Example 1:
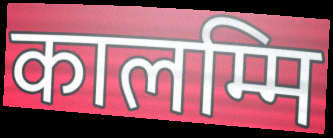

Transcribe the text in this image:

कालम्मि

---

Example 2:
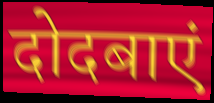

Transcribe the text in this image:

दोदबाएं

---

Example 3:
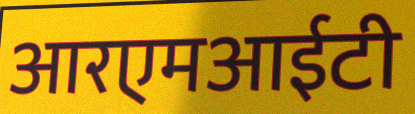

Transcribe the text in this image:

आरएमआईटी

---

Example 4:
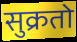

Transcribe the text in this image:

सुक्रतो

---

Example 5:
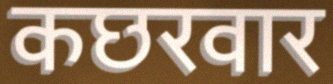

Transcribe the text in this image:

कछरवार